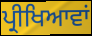
ਪ੍ਰੀਖਿਆਵਾਂ